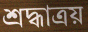
শ্রদ্ধাত্রয়